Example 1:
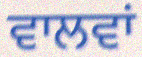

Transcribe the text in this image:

ਵਾਲਵਾਂ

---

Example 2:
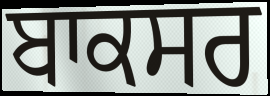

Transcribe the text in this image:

ਬਾਕਸਰ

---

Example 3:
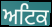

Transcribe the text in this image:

ਅਟਿਕ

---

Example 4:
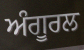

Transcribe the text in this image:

ਅੰਗੂਰਲ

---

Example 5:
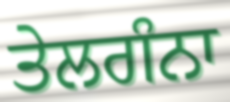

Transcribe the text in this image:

ਤੇਲਗੰਨਾ